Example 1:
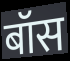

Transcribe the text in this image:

बॉस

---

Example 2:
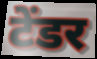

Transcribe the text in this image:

टेंडर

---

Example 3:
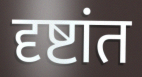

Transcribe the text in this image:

दृष्टांत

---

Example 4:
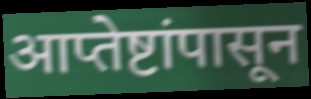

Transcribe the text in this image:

आप्तेष्टांपासून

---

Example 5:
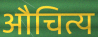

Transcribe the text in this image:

औचित्य